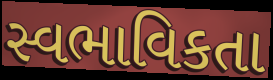
સ્વભાવિકતા